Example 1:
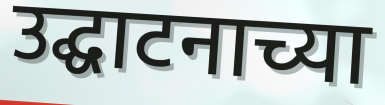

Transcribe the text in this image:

उद्घाटनाच्या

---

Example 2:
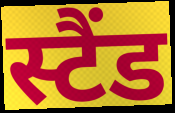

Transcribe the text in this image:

स्टैंड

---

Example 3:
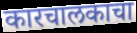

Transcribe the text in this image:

कारचालकाचा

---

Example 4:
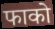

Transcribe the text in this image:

फाको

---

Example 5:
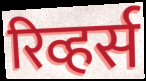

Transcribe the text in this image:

रिव्हर्स